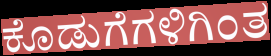
ಕೊಡುಗೆಗಳಿಗಿಂತ